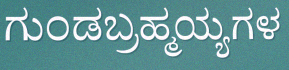
ಗುಂಡಬ್ರಹ್ಮಯ್ಯಗಳ